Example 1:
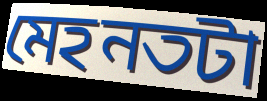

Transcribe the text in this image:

মেহনতটা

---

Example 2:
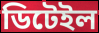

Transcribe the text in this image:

ডিটেইল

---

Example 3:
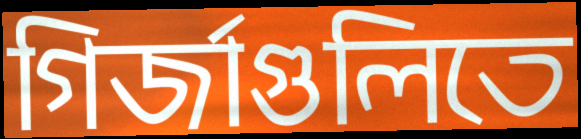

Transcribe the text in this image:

গির্জাগুলিতে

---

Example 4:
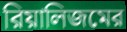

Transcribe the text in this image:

রিয়ালিজমের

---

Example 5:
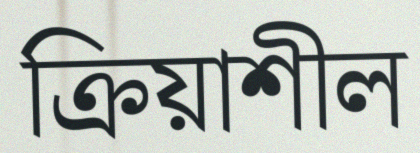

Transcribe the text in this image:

ক্রিয়াশীল